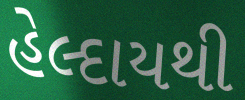
હેલ્દાયથી